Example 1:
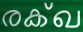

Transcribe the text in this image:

രക്ഖ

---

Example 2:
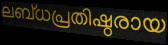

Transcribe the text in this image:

ലബ്ധപ്രതിഷ്ഠരായ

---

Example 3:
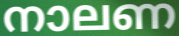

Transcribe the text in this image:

നാലണ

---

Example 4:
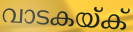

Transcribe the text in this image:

വാടകയ്ക്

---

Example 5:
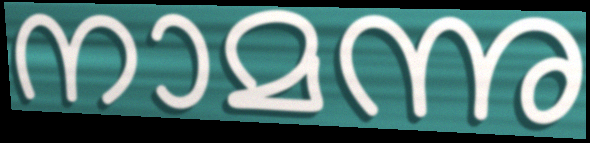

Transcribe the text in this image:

നാമന്നു